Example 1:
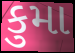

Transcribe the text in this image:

કુમા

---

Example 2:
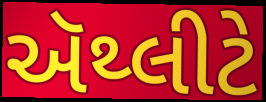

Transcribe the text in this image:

ઍથ્લીટે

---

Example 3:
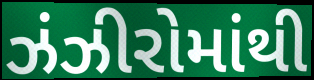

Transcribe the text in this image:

ઝંઝીરોમાંથી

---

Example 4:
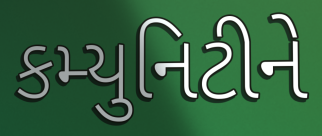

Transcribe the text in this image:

કમ્યુનિટીને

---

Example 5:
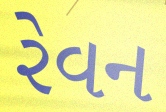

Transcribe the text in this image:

રેવન